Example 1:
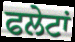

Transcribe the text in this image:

ਫਲੇਟਾਂ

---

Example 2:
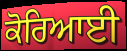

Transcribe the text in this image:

ਕੋਰਿਆਈ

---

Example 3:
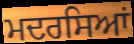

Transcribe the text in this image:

ਮਦਰਸਿਆਂ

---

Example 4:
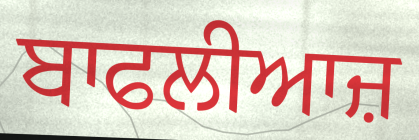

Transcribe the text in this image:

ਬਾਫਲੀਆਜ਼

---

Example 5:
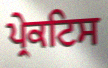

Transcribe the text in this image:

ਪ੍ਰੇਕਟਿਸ